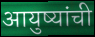
आयुष्यांची